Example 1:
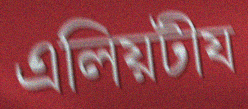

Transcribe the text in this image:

এলিয়টীয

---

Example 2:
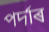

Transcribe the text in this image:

পৰ্দাৰ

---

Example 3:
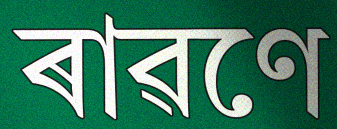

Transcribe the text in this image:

ৰাৱণে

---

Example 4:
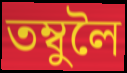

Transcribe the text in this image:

তম্বুলৈ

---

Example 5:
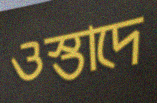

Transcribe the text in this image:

ওস্তাদে